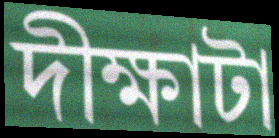
দীক্ষাটা